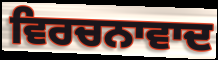
ਵਿਰਚਨਾਵਾਦ